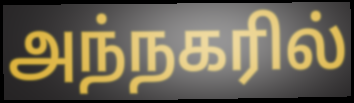
அந்நகரில்